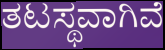
ತಟಸ್ಥವಾಗಿವೆ